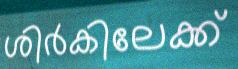
ശിർകിലേക്ക്